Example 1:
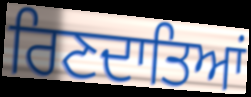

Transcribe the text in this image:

ਰਿਣਦਾਤਿਆਂ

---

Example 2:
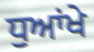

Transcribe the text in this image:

ਧੁਆਂਖੇ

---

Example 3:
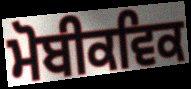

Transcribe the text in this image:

ਮੋਬੀਕਵਿਕ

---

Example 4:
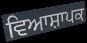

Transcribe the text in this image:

ਵਿਆਸ਼ਾਪਕ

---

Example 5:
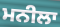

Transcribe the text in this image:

ਮਨੀਲਾ